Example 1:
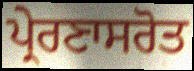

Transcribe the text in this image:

ਪ੍ਰੇਰਣਾਸਰੋਤ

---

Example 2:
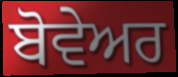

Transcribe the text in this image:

ਬੋਵੇਅਰ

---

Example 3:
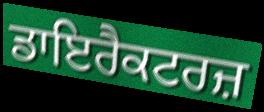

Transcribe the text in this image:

ਡਾਇਰੈਕਟਰਜ਼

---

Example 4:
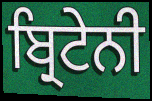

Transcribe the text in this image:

ਬ੍ਰਿਟੇਨੀ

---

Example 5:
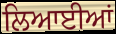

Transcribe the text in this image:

ਲਿਆਈਆਂ